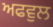
ਅਫਵੁਲ